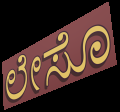
ಲೇಸೊ